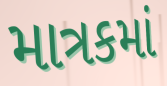
માત્રકમાં